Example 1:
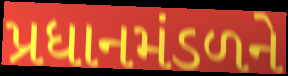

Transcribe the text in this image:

પ્રધાનમંડળને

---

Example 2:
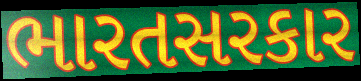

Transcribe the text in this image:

ભારતસરકાર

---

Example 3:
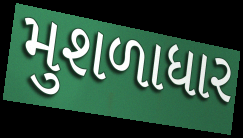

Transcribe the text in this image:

મુશળાધાર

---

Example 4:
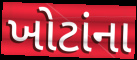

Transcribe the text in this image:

ખોટાંના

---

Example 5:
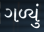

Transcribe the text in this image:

ગળ્યું